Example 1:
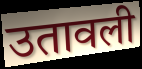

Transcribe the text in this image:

उतावली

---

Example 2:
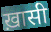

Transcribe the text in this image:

ख़ासी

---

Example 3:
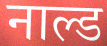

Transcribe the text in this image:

नाल्ड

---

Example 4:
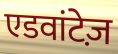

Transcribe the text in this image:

एडवांटेज़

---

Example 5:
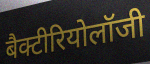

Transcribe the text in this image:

बैक्टीरियोलॉजी